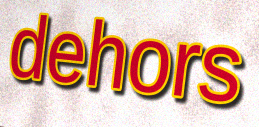
dehors